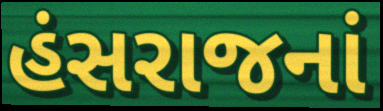
હંસરાજનાં